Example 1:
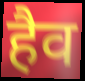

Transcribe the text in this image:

हैव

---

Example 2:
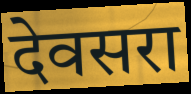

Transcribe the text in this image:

देवसरा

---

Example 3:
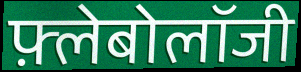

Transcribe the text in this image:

फ़्लेबोलॉजी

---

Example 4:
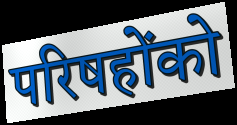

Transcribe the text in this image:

परिषहोंको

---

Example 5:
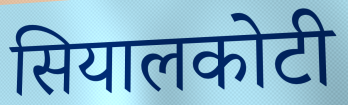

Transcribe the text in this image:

सियालकोटी